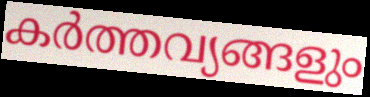
കർത്തവ്യങ്ങളും